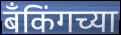
बँकिंगच्या